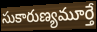
సుకారుణ్యమూర్తే